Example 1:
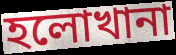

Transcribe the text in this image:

হলোখানা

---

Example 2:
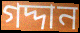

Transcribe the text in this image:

গদ্দান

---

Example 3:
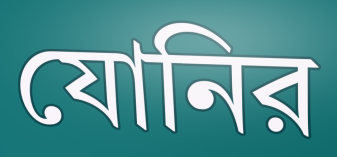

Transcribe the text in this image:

যোনির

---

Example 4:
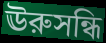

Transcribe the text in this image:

ঊরুসন্ধি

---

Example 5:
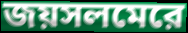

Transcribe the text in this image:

জয়সলমেরে